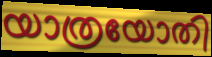
യാത്രയോതി